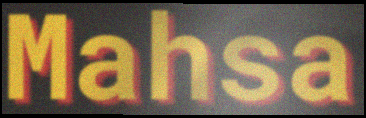
Mahsa